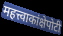
महत्त्वाकांक्षेपोटी